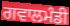
ਗਵਾਲਮੰਡੀ